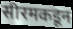
सीरमकडून